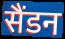
सैंडन